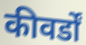
कीवर्डों